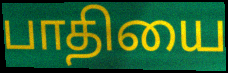
பாதியை